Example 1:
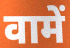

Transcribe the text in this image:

वामें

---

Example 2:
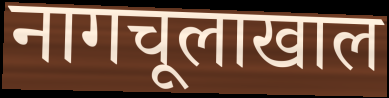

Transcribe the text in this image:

नागचूलाखाल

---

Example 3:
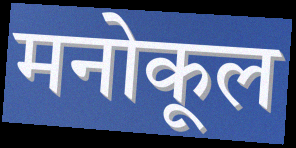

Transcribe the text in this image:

मनोकूल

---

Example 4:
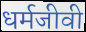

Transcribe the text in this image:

धर्मजीवी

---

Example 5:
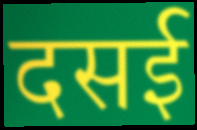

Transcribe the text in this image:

दसई